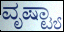
ವೃಷ್ಟ್ಯಾ